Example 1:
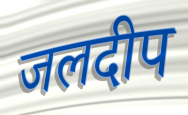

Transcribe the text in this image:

जलदीप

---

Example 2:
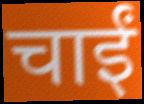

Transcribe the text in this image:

चाईं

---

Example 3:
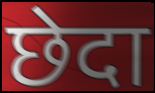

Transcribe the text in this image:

छेदा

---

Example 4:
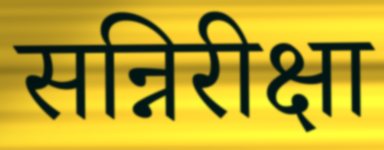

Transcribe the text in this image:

सन्निरीक्षा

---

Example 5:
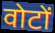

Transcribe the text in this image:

वोटों